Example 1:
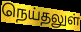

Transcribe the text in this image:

நெய்தலுள்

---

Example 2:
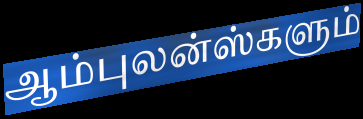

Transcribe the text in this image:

ஆம்புலன்ஸ்களும்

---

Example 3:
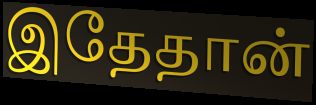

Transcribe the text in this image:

இதேதான்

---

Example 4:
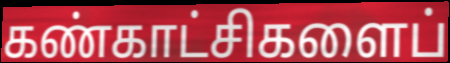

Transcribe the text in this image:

கண்காட்சிகளைப்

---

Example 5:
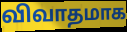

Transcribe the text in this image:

விவாதமாக